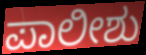
ಪಾಲೀಶು